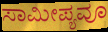
ಸಾಮೀಪ್ಯವೂ